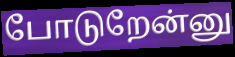
போடுறேன்னு